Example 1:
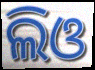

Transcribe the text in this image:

ଲିଓ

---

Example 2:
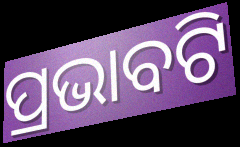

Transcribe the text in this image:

ପ୍ରଭାବଟି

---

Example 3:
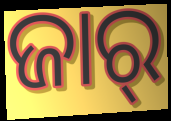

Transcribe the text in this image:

ଜାର୍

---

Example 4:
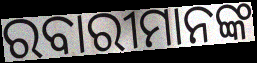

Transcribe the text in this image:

ରବାରୀମାନଙ୍କ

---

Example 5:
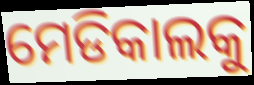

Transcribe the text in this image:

ମେଡିକାଲକୁ